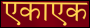
एकाएक